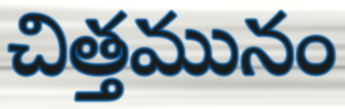
చిత్తమునం